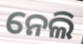
ନେଲି